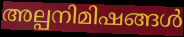
അല്പനിമിഷങ്ങൾ